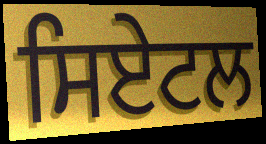
ਸਿਏਟਲ